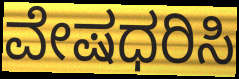
ವೇಷಧರಿಸಿ